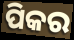
ପିକର